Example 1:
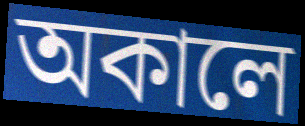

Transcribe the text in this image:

অকালে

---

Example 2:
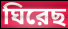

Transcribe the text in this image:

ঘিরেছ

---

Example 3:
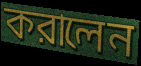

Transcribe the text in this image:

করালেন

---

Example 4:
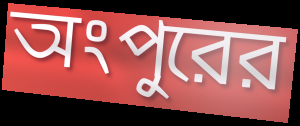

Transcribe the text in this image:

অংপুরের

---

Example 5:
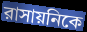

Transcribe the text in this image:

রাসায়নিকে